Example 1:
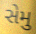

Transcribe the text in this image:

સેમુ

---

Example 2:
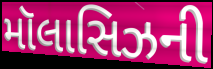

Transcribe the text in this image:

મૉલાસિઝની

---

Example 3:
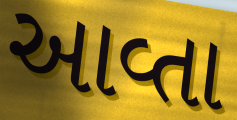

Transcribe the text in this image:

આવ્તા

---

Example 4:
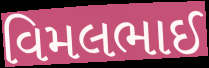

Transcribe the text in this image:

વિમલભાઈ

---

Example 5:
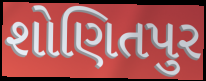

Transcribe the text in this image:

શોણિતપુર